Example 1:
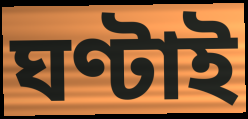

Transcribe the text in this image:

ঘণ্টাই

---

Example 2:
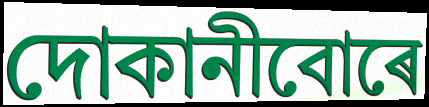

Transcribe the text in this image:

দোকানীবোৰে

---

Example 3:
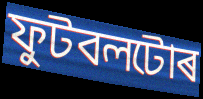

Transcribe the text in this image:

ফুটবলটোৰ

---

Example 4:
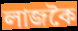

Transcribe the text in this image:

লাজকৈ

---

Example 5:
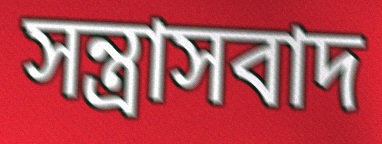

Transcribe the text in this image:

সন্ত্ৰাসবাদ